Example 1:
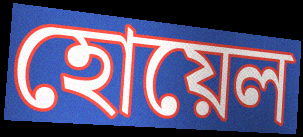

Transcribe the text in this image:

হোয়েল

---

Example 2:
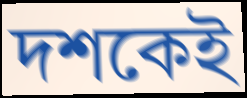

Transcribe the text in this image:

দশকেই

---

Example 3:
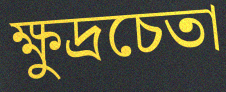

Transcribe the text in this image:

ক্ষুদ্রচেতা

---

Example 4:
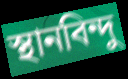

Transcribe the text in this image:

স্থানবিন্দু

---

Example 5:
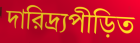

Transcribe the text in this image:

দারিদ্র্যপীড়িত